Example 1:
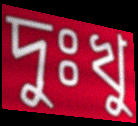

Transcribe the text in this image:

দুঃখু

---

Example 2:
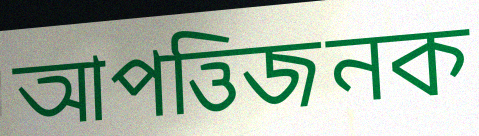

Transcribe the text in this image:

আপত্তিজনক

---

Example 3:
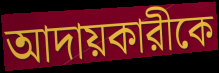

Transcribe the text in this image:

আদায়কারীকে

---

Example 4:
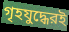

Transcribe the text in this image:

গৃহযুদ্ধেরই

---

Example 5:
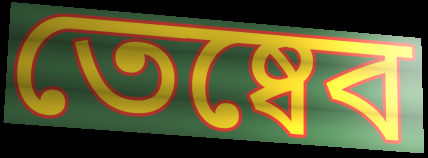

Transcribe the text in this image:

তেষ্বেব